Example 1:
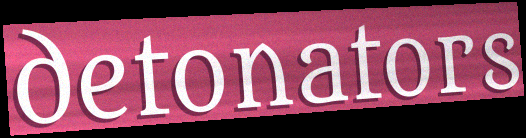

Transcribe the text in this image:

detonators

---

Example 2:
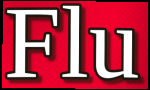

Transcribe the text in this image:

Flu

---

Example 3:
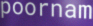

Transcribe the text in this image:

poornam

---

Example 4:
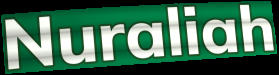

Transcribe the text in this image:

Nuraliah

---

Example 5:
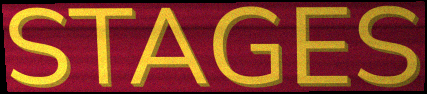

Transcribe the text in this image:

STAGES